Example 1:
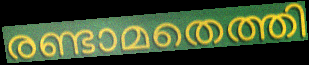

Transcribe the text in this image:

രണ്ടാമതെത്തി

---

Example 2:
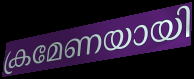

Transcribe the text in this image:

ക്രമേണയായി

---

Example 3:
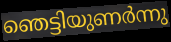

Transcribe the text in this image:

ഞെട്ടിയുണർന്നു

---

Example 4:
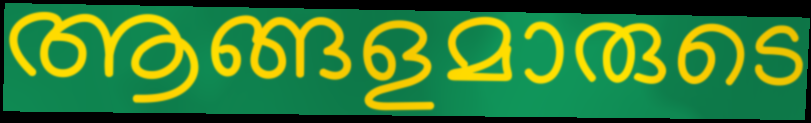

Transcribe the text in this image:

ആങ്ങളമാരുടെ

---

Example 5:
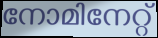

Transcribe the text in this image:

നോമിനേറ്റ്